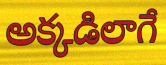
అక్కడిలాగే